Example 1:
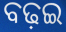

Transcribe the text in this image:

ବଢ଼ଇ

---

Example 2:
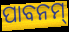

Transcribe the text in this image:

ପାବନମ୍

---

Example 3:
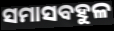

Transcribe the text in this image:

ସମାସବହୁଳ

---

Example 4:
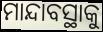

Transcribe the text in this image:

ମାନ୍ଦାବସ୍ଥାକୁ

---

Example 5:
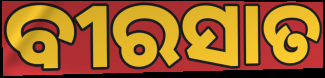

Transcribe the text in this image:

ବୀରସାତ